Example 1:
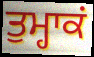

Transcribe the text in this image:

ਤੁਮ੍ਹਾਕਂ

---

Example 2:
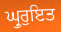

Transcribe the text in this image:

ਘ੍ਰੁਰੁਇਤ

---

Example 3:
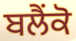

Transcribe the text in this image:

ਬਲੈਂਕੋ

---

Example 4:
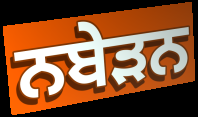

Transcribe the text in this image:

ਨਬੇੜਨ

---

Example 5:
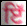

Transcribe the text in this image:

ਇੱ